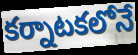
కర్నాటకలోనే